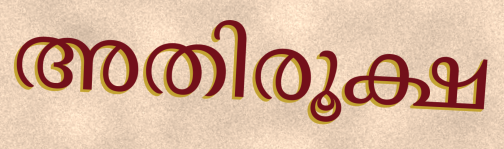
അതിരൂക്ഷ